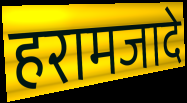
हरामजादे